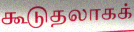
கூடுதலாகக்